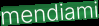
mendiami